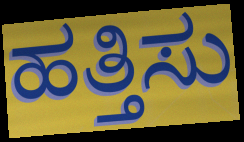
ಹತ್ತಿಸು